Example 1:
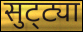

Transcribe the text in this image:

सुट्‌ट्या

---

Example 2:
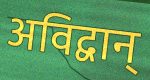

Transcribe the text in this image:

अविद्वान्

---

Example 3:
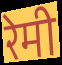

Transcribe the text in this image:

रेमी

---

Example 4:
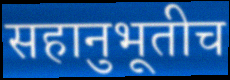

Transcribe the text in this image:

सहानुभूतीच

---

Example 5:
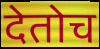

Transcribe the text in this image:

देतोच